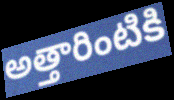
అత్తారింటికి